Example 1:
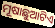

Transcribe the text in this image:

ମୂଷାଛୁଆଟିଏ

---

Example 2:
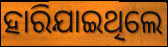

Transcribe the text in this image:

ହାରିଯାଇଥିଲେ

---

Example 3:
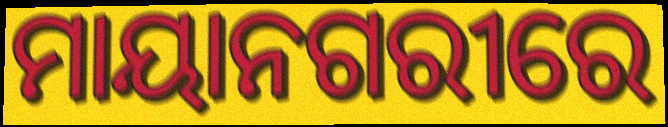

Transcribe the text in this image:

ମାୟାନଗରୀରେ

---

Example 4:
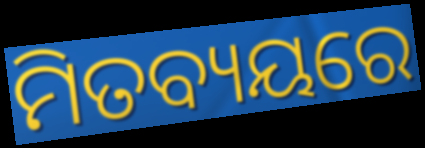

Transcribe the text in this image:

ମିତବ୍ୟୟରେ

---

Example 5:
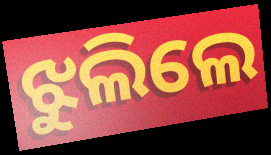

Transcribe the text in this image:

ଝୁଲିଲେ